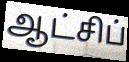
ஆட்சிப்